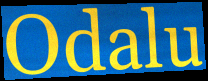
Odalu